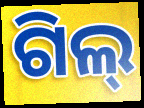
ଗିଲ୍